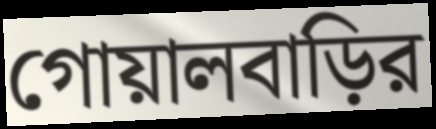
গোয়ালবাড়ির